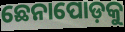
ଛେନାପୋଡ଼କୁ